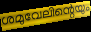
ശമുവേലിന്റെയും